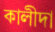
কালীদা